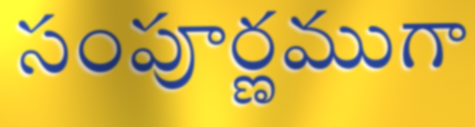
సంపూర్ణముగా